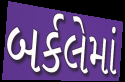
બર્કલેમાં